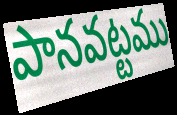
పానవట్టము